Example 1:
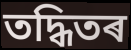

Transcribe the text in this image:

তদ্ধিতৰ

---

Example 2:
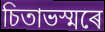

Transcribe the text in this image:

চিতাভস্মৰে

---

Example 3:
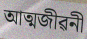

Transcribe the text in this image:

আত্মজীৱনী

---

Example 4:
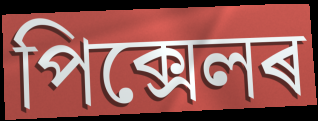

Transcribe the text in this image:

পিক্সেলৰ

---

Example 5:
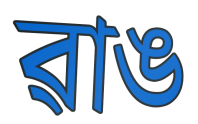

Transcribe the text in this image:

ৱাঙ